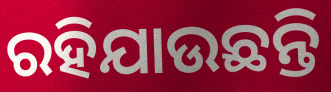
ରହିଯାଉଛନ୍ତି